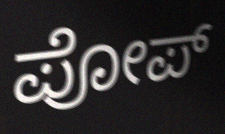
ಪೋಪ್